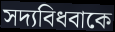
সদ্যবিধবাকে